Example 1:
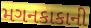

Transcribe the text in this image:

મગનકાકાની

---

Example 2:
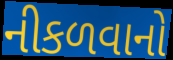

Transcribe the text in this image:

નીકળવાનો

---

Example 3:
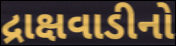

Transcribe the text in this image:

દ્રાક્ષવાડીનો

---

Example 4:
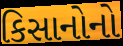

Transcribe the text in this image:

કિસાનોનો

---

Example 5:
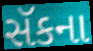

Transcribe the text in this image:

સૅકના